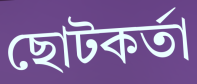
ছোটকর্তা